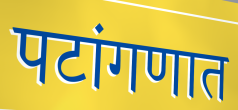
पटांगणात